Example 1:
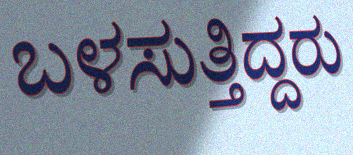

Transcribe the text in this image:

ಬಳಸುತ್ತಿದ್ದರು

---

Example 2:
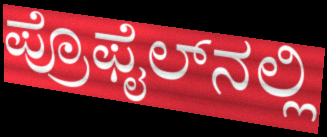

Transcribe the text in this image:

ಪ್ರೊಫೈಲ್‌ನಲ್ಲಿ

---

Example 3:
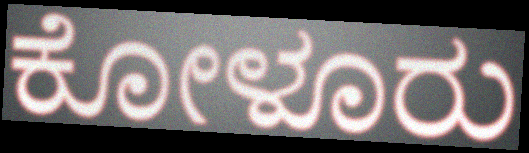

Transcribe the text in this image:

ಕೋಳೂರು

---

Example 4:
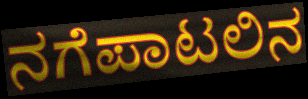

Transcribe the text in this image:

ನಗೆಪಾಟಲಿನ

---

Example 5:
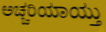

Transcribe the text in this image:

ಅಚ್ಚರಿಯಾಯ್ತು